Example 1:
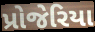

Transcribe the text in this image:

પ્રોજેરિયા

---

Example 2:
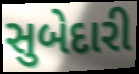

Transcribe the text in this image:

સુબેદારી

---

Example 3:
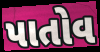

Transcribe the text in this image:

પાતોવ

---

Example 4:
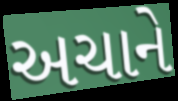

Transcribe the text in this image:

અચાને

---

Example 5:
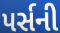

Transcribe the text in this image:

પર્સની